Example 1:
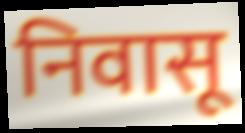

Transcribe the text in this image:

निवासू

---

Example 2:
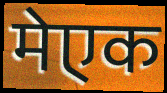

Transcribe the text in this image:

मेएक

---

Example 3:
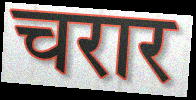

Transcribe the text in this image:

चरार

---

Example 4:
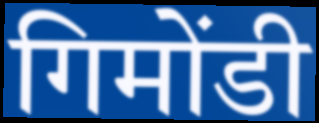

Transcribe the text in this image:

गिमोंडी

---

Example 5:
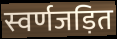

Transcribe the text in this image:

स्वर्णजड़ित